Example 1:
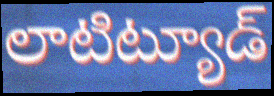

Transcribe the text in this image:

లాటిట్యూడ్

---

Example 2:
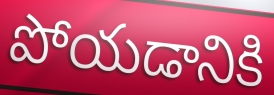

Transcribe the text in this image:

పోయడానికి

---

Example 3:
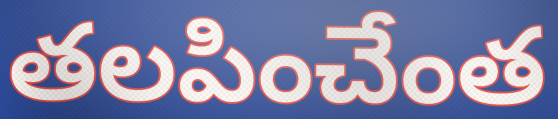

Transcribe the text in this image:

తలపించేంత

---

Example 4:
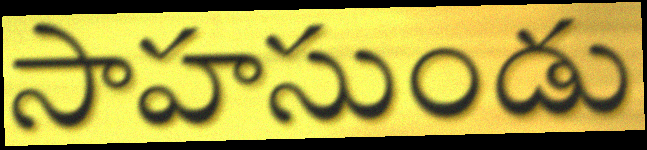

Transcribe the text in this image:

సాహసుండు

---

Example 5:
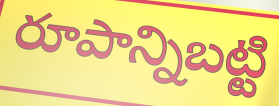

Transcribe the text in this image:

రూపాన్నిబట్టి